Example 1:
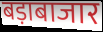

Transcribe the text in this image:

बड़ाबाजार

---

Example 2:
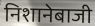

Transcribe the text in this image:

निशानेबाजी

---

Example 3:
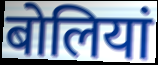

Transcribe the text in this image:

बोलियां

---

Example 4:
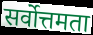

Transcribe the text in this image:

सर्वोत्तमता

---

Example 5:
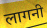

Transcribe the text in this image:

लागनी